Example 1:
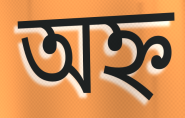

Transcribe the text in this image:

অহ্ন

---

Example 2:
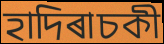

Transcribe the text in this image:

হাদিৰাচকী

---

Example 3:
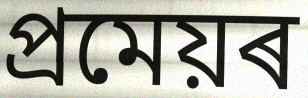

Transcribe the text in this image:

প্ৰমেয়ৰ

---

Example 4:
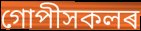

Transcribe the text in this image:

গোপীসকলৰ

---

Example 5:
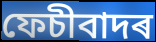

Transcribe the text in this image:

ফেচীবাদৰ